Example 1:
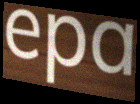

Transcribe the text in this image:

epa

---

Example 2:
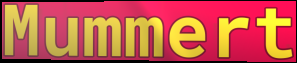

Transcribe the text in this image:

Mummert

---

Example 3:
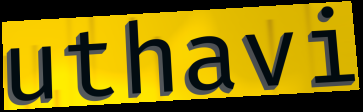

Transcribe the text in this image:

uthavi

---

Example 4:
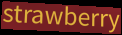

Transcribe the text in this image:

strawberry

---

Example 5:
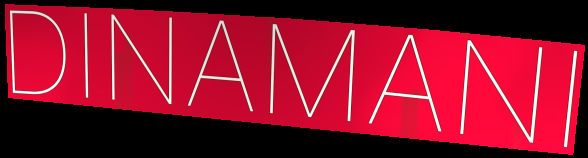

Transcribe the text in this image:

DINAMANI